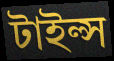
টাইল্স